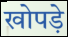
खोपड़े